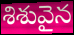
శిశువైన